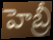
హెబ్రీ